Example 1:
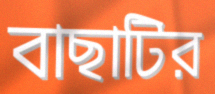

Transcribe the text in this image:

বাছাটির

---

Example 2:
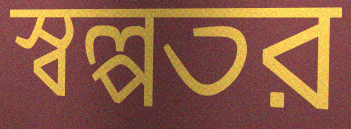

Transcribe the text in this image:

স্বল্পতর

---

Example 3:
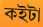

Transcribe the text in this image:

কইটা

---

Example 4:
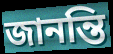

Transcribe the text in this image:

জানন্তি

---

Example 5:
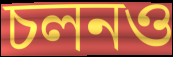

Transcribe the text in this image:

চলনও